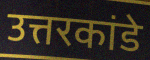
उत्तरकांडे